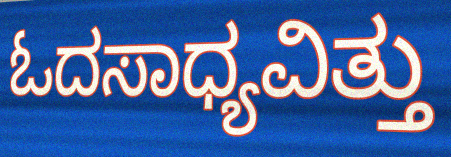
ಓದಸಾಧ್ಯವಿತ್ತು